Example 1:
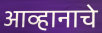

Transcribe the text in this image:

आव्हानाचे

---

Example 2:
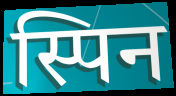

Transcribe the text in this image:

स्पिन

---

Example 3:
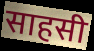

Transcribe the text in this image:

साहसी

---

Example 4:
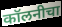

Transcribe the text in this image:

कॉलनीचा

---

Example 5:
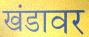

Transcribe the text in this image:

खंडावर